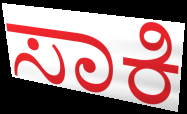
ಸಾಕಿ